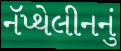
નૅપ્થેલીનનું